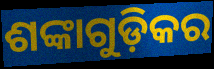
ଶଙ୍କାଗୁଡ଼ିକର